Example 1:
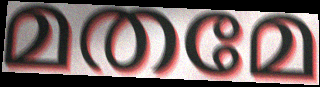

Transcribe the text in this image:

മതമേ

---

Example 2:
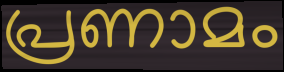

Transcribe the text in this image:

പ്രണാമം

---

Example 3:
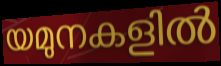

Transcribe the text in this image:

യമുനകളിൽ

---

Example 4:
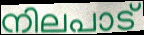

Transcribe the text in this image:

നിലപാട്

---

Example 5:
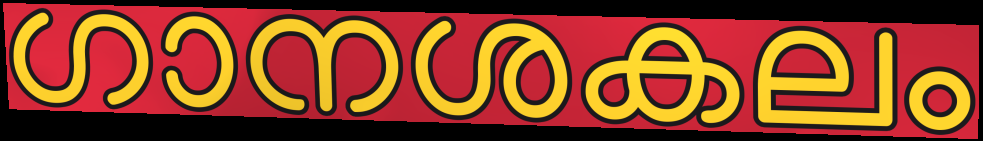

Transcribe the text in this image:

ഗാനശകലം